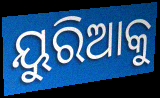
ୟୁରିଆକୁ